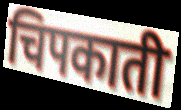
चिपकाती